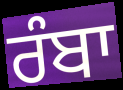
ਰੰਬਾ